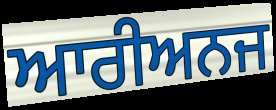
ਆਰੀਅਨਜ